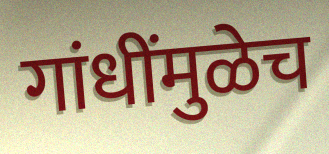
गांधींमुळेच